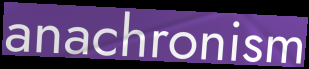
anachronism